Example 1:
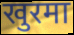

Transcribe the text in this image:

खुरमा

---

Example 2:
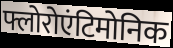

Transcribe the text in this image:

फ्लोरोएंटिमोनिक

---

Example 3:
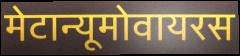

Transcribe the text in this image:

मेटान्यूमोवायरस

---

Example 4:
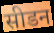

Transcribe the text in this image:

सीडन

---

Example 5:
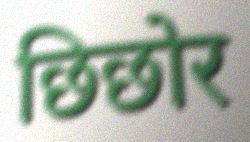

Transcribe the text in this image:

छिछोर